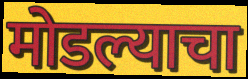
मोडल्याचा